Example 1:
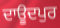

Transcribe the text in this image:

ਦਾਊਦਪੁਰ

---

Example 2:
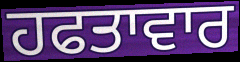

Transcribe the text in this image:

ਹਫਤਾਵਾਰ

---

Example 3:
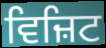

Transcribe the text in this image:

ਵਿਜ਼ਿਟ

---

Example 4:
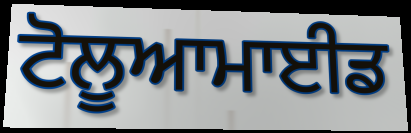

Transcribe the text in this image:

ਟੋਲੂਆਮਾਈਡ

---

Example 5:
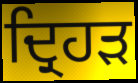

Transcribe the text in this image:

ਦ੍ਰਿਹੜ